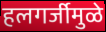
हलगर्जीमुळे